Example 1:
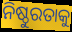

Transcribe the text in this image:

ନିଷ୍ଠୁରତାକୁ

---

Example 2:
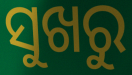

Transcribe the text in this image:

ସୁଖରୁ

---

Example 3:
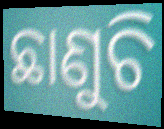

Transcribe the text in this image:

ଛାଣୁଚି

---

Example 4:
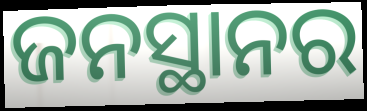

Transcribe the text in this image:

ଜନସ୍ଥାନର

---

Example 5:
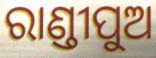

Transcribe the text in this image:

ରାଣ୍ଡୀପୁଅ